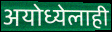
अयोध्येलाही